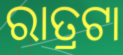
ରାତ୍ରଟା